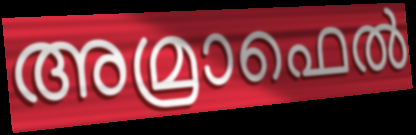
അമ്രാഫെൽ